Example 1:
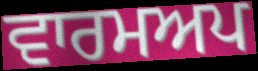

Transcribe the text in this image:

ਵਾਰਮਅਪ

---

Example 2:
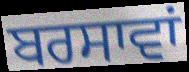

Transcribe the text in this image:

ਬਰਸਾਵਾਂ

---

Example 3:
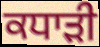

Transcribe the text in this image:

ਕਧਾੜੀ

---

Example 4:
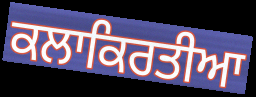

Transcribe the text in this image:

ਕਲਾਕਿਰਤੀਆ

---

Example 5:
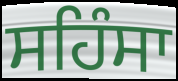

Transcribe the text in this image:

ਸਹਿੰਸਾ